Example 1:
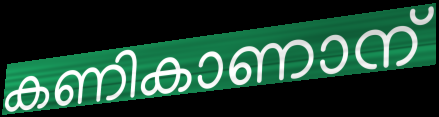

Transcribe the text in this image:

കണികാണാന്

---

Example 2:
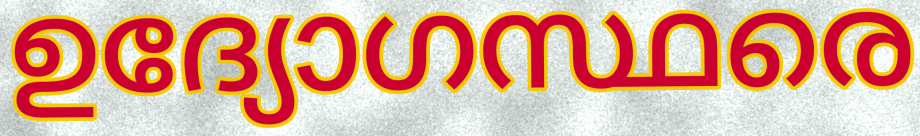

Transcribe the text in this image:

ഉദ്യോഗസ്ഥരെ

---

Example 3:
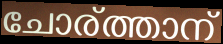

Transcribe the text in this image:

ചോര്ത്താന്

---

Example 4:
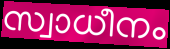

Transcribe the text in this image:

സ്വാധീനം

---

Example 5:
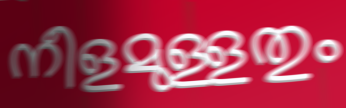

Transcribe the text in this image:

നീളമുള്ളതും